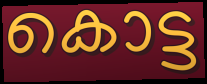
കൊട്ട